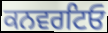
ਕਨਵਰਟਿਓ